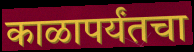
काळापर्यंतचा